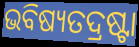
ଭବିଷ୍ୟତଦ୍ରଷ୍ଟା